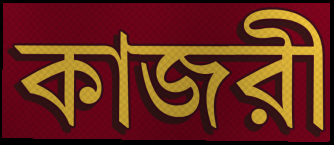
কাজরী